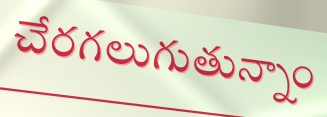
చేరగలుగుతున్నాం